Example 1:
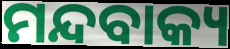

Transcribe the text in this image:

ମନ୍ଦବାକ୍ୟ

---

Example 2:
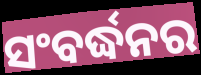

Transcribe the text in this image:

ସଂବର୍ଦ୍ଧନର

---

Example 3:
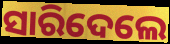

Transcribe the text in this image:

ସାରିଦେଲେ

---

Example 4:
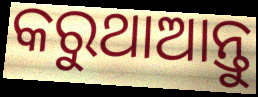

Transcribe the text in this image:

କରୁଥାଆନ୍ତୁ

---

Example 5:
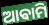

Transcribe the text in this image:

ଆଵାମି